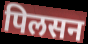
पिलसन